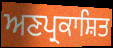
ਅਣਪ੍ਰਕਾਸ਼ਿਤ